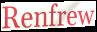
Renfrew